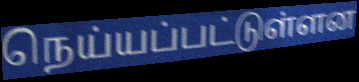
நெய்யப்பட்டுள்ளன